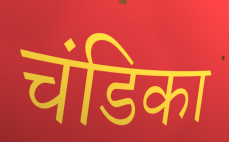
चंडिका